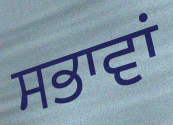
ਸਭਾਵਾਂ